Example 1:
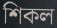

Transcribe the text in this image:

শিকল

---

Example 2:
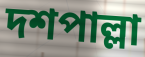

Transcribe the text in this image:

দশপাল্লা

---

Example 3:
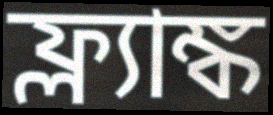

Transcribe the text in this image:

ফ্ল্যাঙ্ক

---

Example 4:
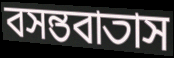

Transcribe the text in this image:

বসন্তবাতাস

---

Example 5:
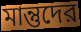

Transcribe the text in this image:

মান্তুদের